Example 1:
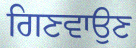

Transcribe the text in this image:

ਗਿਣਵਾਉਣ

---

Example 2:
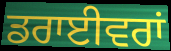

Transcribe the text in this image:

ਡਰਾਈਵਰਾਂ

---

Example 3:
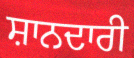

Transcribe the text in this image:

ਸ਼ਾਨਦਾਰੀ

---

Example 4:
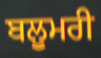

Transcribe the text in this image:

ਬਲੂਮਰੀ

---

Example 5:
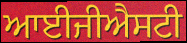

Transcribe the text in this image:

ਆਈਜੀਐਸਟੀ